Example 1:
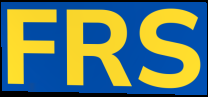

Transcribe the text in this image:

FRS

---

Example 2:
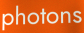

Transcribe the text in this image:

photons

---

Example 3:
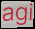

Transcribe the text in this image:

agi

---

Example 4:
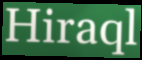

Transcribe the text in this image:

Hiraql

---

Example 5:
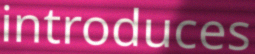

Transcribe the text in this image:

introduces